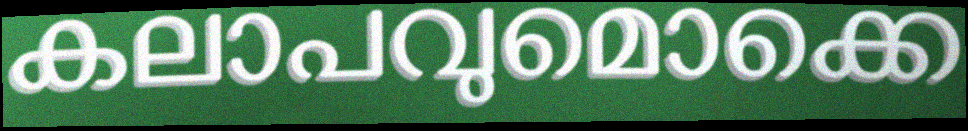
കലാപവുമൊക്കെ